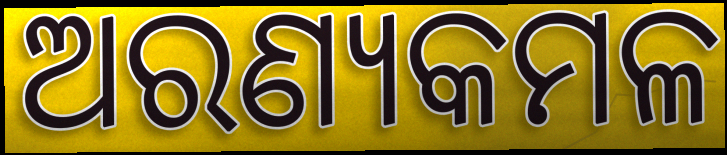
ଅରଣ୍ୟକମଳ